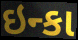
ઇન્કા